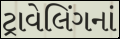
ટ્રાવેલિંગનાં